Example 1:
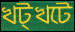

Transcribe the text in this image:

খট্‌খটে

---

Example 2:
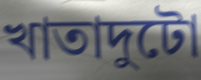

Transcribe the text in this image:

খাতাদুটো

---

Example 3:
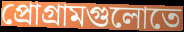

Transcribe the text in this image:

প্রোগ্রামগুলোতে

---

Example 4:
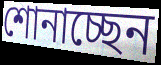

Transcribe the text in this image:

শোনাচ্ছেন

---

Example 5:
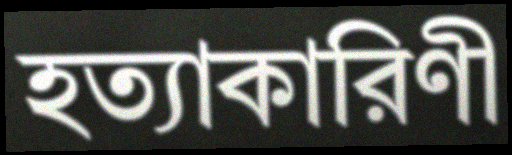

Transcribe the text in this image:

হত্যাকারিণী